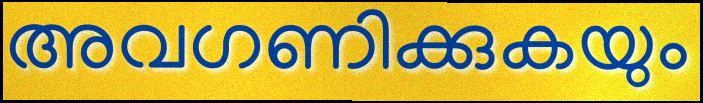
അവഗണിക്കുകയും